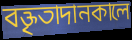
বক্তৃতাদানকালে